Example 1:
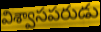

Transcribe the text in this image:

విశ్వాసపరుడు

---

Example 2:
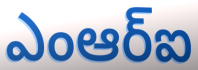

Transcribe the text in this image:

ఎంఆర్ఐ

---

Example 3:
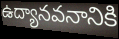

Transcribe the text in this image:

ఉద్యానవనానికి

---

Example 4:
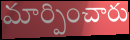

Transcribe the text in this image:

మార్పించారు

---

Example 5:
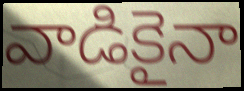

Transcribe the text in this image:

వాడికైనా